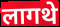
लागथे